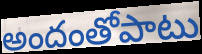
అందంతోపాటు